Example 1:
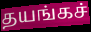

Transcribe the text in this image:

தயங்கச்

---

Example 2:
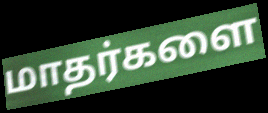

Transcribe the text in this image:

மாதர்களை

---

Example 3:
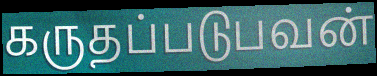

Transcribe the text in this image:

கருதப்படுபவன்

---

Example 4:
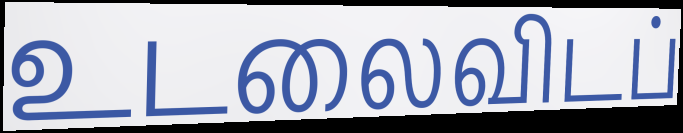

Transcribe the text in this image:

உடலைவிடப்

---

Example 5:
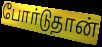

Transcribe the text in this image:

போர்டுதான்